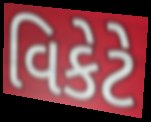
વિકેટે